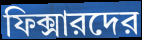
ফিক্সারদের